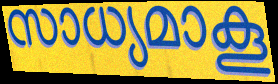
സാധ്യമാകൂ